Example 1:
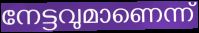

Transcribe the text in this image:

നേട്ടവുമാണെന്ന്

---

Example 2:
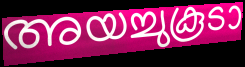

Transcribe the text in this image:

അയച്ചുകൂടാ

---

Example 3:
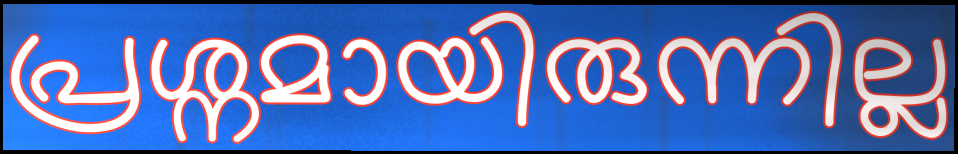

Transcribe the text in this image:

പ്രശ്നമായിരുന്നില്ല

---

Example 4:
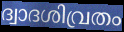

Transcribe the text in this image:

ദ്വാദശിവ്രതം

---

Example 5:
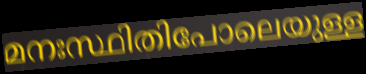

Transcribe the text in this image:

മനഃസ്ഥിതിപോലെയുള്ള